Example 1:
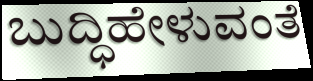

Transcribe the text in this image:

ಬುದ್ಧಿಹೇಳುವಂತೆ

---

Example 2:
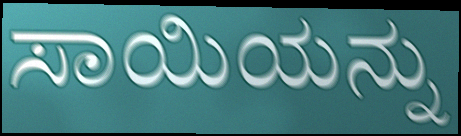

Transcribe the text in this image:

ಸಾಯಿಯನ್ನು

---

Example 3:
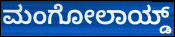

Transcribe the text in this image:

ಮಂಗೋಲಾಯ್ಡ್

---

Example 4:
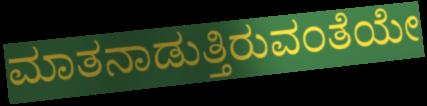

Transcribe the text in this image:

ಮಾತನಾಡುತ್ತಿರುವಂತೆಯೇ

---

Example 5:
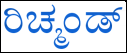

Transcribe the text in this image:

ರಿಚ್ಮಂಡ್